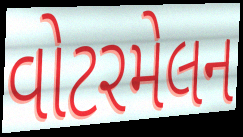
વોટરમેલન